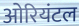
ओरियंटल